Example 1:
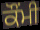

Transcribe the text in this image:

ਕੌਂਮੀ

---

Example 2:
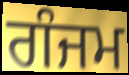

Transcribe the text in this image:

ਗੰਜਮ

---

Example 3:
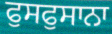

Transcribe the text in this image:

ਫੁਸਫੁਸਾਨਾ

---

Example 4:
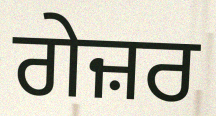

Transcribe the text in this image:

ਗੇਜ਼ਰ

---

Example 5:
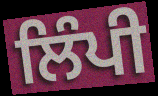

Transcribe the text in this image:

ਲਿੰਪੀ